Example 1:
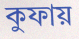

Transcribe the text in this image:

কুফায়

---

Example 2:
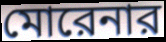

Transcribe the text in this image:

মোরেনার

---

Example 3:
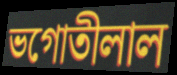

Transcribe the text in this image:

ভগোতীলাল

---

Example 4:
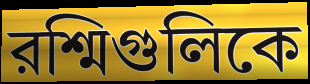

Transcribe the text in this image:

রশ্মিগুলিকে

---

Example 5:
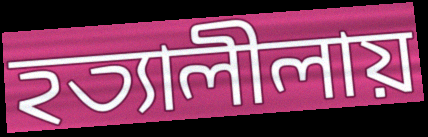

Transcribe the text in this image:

হত্যালীলায়